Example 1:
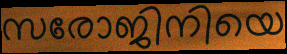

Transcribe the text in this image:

സരോജിനിയെ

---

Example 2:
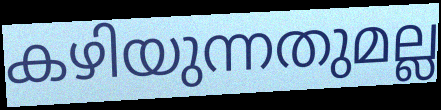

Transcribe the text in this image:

കഴിയുന്നതുമല്ല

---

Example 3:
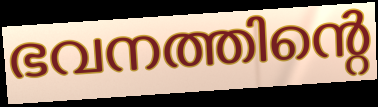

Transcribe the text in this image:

ഭവനത്തിന്റെ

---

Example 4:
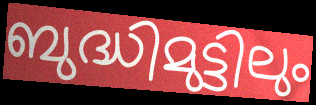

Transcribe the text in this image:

ബുദ്ധിമുട്ടിലും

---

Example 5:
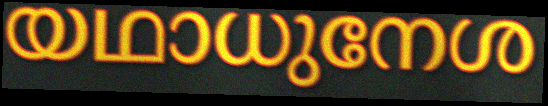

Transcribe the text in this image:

യഥാധുനേശ